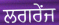
ਲਗਰੇਂਜ